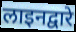
लाइनद्वारे